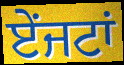
ਏਂਜਟਾਂ